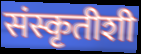
संस्कृतीशी